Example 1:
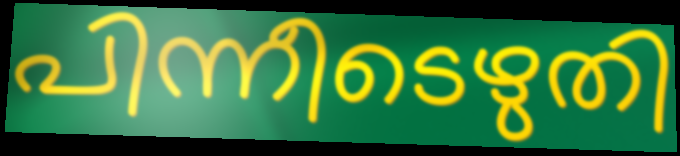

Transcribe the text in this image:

പിന്നീടെഴുതി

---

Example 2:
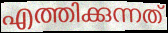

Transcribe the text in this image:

എത്തിക്കുന്നത്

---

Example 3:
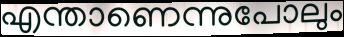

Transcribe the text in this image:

എന്താണെന്നുപോലും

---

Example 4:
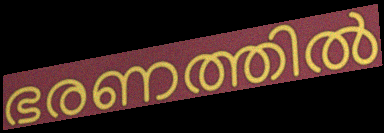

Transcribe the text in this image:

ഭരണത്തിൽ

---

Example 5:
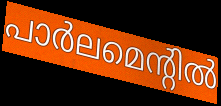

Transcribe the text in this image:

പാർലമെന്റിൽ